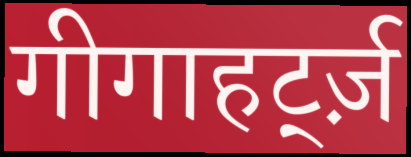
गीगाहर्ट्ज़